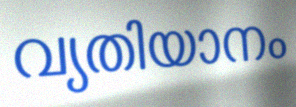
വ്യതിയാനം